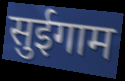
सुईगाम